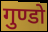
गुण्डो